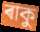
ৰাকু